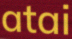
atai